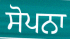
ਸੋਪਨਾ